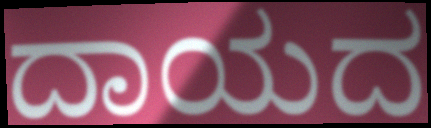
ದಾಯದ